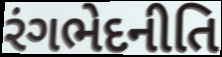
રંગભેદનીતિ